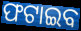
ଫଟାଇବ